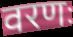
वरणः